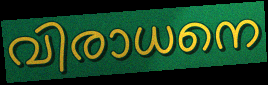
വിരാധനെ